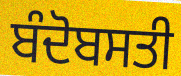
ਬੰਦੋਬਸਤੀ